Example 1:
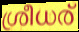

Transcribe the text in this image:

ശ്രീധര്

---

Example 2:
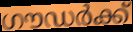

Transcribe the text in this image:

ഗൗഡർക്ക്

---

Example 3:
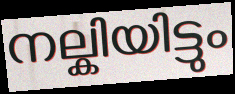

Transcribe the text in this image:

നല്കിയിട്ടും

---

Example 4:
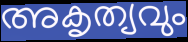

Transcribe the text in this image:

അകൃത്യവും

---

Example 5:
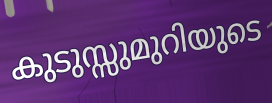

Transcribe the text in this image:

കുടുസ്സുമുറിയുടെ